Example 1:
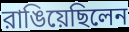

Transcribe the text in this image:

রাঙিয়েছিলেন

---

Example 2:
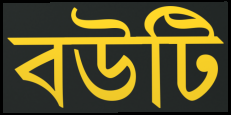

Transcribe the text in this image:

বউটি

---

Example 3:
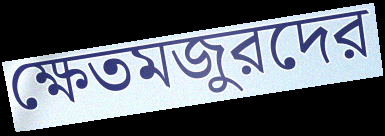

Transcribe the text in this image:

ক্ষেতমজুরদের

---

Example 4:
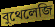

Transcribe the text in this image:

বুথেলেজি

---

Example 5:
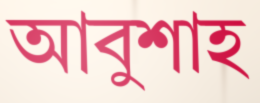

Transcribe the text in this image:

আবুশাহ